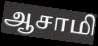
ஆசாமி